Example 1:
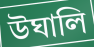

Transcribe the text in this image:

উঘালি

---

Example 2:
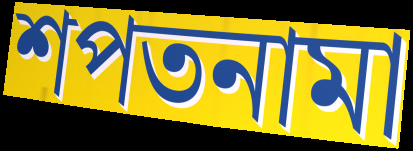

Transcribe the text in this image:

শপতনামা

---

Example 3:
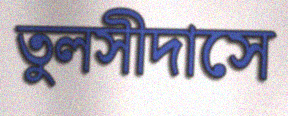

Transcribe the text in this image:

তুলসীদাসে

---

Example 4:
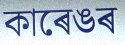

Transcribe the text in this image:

কাৰেঙৰ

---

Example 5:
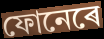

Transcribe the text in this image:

ফোনেৰে